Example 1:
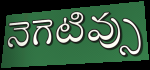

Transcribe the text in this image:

నెగెటివ్సు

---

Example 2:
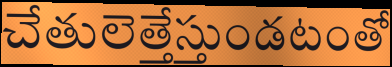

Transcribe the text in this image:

చేతులెత్తేస్తుండటంతో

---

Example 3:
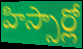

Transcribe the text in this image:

హిస్సార్లో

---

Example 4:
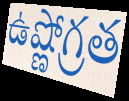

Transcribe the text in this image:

ఉష్ణోగ్రత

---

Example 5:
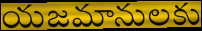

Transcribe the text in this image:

యజమానులకు